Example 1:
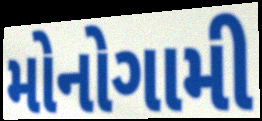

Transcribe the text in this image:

મોનોગામી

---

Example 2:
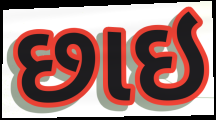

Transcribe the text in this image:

છાઇ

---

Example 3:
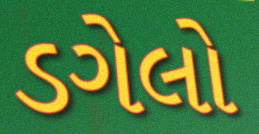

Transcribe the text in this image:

ડગેલો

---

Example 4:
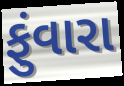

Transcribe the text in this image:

ફુંવારા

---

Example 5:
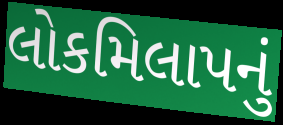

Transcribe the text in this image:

લોકમિલાપનું